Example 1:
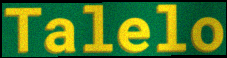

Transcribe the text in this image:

Talelo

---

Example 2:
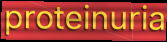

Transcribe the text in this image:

proteinuria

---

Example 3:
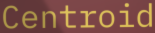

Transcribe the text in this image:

Centroid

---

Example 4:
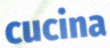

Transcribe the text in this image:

cucina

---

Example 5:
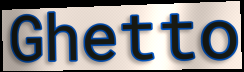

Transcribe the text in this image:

Ghetto